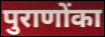
पुराणोंका